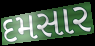
દમસાર